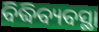
ବିଦ୍ଧିବ୍ୟବସ୍ଥା